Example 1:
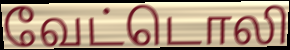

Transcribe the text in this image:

வேட்டொலி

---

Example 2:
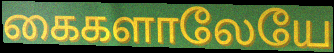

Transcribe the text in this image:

கைகளாலேயே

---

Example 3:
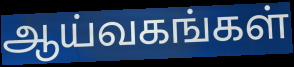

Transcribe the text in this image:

ஆய்வகங்கள்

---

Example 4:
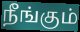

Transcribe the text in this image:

நீங்கும்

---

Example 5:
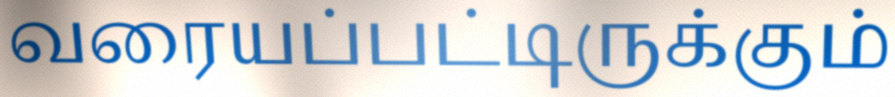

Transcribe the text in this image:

வரையப்பட்டிருக்கும்